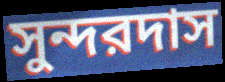
সুন্দরদাস